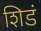
शिडं